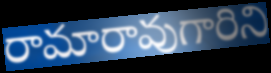
రామారావుగారిని